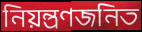
নিয়ন্ত্রণজনিত